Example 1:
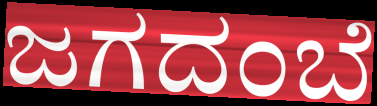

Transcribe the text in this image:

ಜಗದಂಬೆ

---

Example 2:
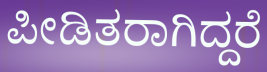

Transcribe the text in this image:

ಪೀಡಿತರಾಗಿದ್ದರೆ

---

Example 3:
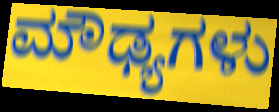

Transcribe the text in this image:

ಮೌಢ್ಯಗಳು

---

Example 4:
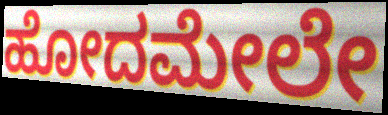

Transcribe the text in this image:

ಹೋದಮೇಲೇ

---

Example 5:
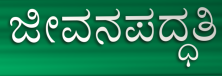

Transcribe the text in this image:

ಜೀವನಪದ್ಧತಿ